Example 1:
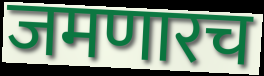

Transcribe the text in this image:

जमणारच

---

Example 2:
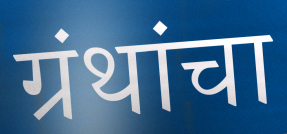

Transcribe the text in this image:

ग्रंथांचा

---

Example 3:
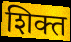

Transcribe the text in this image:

शिक्त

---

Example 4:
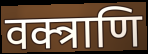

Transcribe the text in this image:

वक्त्राणि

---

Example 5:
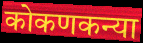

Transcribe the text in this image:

कोकणकन्या